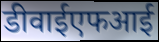
डीवाईएफआई